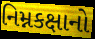
નિમ્નકક્ષાનો